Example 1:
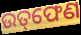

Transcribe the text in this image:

ଉତ୍‌ଫେଣ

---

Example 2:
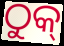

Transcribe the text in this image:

ଠୁକ୍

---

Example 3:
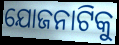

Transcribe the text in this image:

ଯୋଜନାଟିକୁ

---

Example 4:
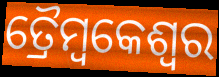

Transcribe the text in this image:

ତ୍ରୈମ୍ବକେଶ୍ୱର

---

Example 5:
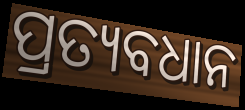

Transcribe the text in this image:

ପ୍ରତ୍ୟବଧାନ